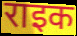
राइक